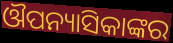
ଔପନ୍ୟାସିକାଙ୍କର